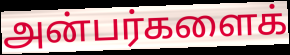
அன்பர்களைக்